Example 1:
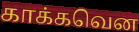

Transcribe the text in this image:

காக்கவென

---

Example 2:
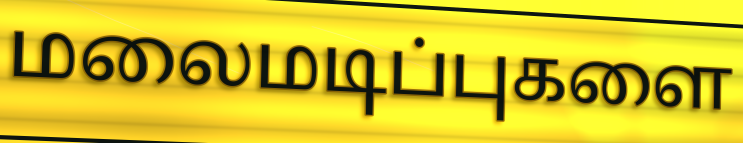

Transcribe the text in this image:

மலைமடிப்புகளை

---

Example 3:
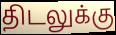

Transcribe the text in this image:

திடலுக்கு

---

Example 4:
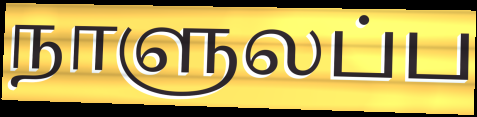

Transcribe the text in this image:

நாளுலப்ப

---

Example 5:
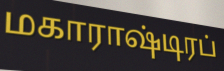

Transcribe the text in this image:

மகாராஷ்டிரப்